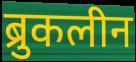
ब्रुकलीन